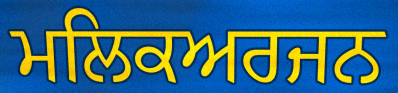
ਮਲਿਕਅਰਜਨ